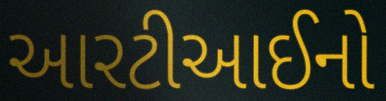
આરટીઆઈનો